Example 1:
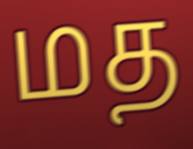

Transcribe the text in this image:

மத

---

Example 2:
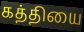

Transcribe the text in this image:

கத்தியை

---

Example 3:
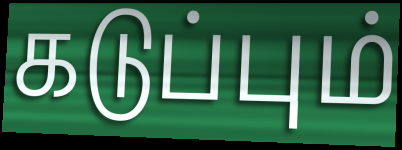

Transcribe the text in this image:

கடுப்பும்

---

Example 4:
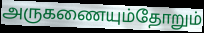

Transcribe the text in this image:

அருகணையும்தோறும்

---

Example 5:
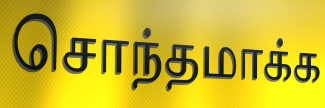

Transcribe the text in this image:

சொந்தமாக்க